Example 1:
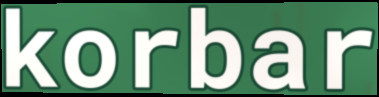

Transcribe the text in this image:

korbar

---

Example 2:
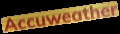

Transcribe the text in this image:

Accuweather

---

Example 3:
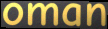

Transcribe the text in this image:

oman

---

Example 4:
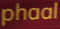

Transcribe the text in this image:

phaal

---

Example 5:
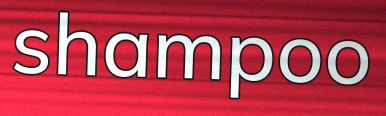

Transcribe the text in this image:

shampoo